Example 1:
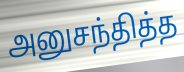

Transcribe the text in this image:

அனுசந்தித்த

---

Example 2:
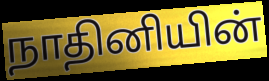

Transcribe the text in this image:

நாதினியின்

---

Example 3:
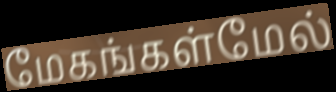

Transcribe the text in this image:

மேகங்கள்மேல்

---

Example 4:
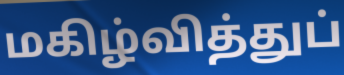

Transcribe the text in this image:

மகிழ்வித்துப்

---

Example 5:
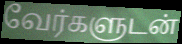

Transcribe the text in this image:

வேர்களுடன்